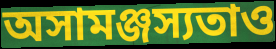
অসামঞ্জস্যতাও